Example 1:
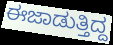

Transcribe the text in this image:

ಈಜಾಡುತ್ತಿದ್ದ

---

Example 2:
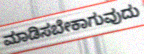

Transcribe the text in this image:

ಮಾಡಿಸಬೇಕಾಗುವುದು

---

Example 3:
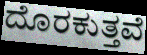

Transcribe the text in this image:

ದೊರಕುತ್ತವೆ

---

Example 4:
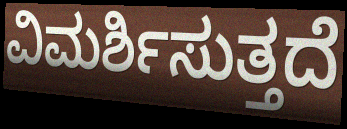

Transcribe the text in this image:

ವಿಮರ್ಶಿಸುತ್ತದೆ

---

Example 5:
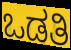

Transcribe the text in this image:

ಒಡತಿ